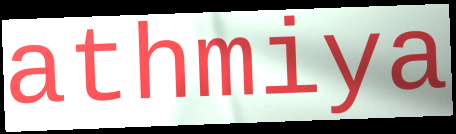
athmiya